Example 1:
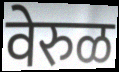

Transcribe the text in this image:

वेरुळ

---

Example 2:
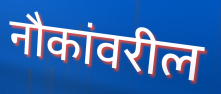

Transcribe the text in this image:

नौकांवरील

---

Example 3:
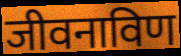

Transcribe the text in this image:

जीवनाविण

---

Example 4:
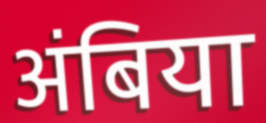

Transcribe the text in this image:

अंबिया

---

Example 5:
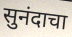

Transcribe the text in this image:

सुनंदाचा